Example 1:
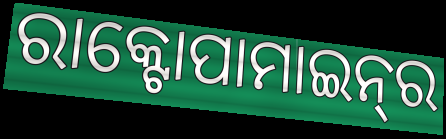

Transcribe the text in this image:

ରାକ୍ଟୋପାମାଇନ୍‌ର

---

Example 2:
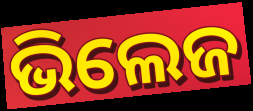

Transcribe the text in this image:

ଭିଲେଜ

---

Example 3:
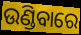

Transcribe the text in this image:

ଉଣ୍ଡିବାରେ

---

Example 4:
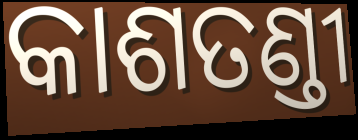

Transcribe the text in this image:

କାଶତଣ୍ଡୀ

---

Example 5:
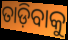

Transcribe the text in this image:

ତାଡ଼ିବାକୁ